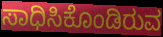
ಸಾಧಿಸಿಕೊಂಡಿರುವ